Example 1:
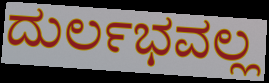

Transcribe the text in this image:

ದುರ್ಲಭವಲ್ಲ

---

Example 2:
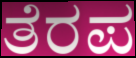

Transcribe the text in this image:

ತೆರಪ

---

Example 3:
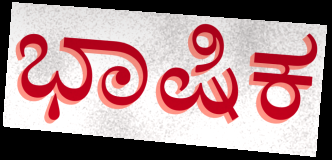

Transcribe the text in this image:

ಭಾಷಿಕ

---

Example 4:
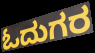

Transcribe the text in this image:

ಓದುಗರ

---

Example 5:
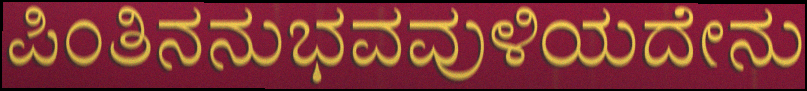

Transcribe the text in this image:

ಪಿಂತಿನನುಭವವುಳಿಯದೇನು